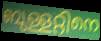
ബുള്ളറ്റിനെ